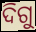
ଦିଗୁ